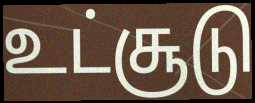
உட்சூடு